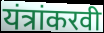
यंत्रांकरवी